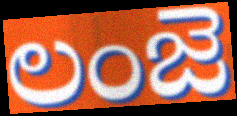
లంజె